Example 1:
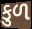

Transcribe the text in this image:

કુળ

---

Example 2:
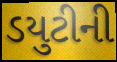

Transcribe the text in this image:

ડયુટીની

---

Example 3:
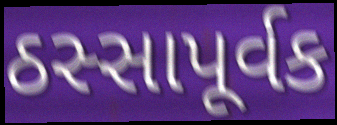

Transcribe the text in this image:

ઠસ્સાપૂર્વક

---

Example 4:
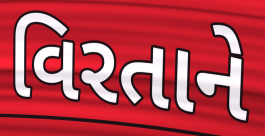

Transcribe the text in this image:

વિરતાને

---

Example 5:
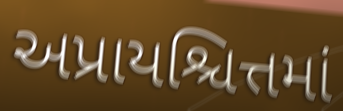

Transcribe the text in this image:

અપ્રાયશ્ચિત્તમાં